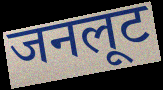
जनलूट